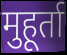
मुहूर्ता